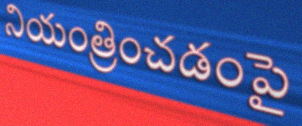
నియంత్రించడంపై